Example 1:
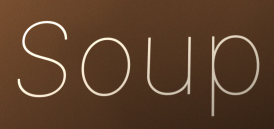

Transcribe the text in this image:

Soup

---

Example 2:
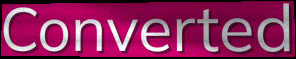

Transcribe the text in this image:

Converted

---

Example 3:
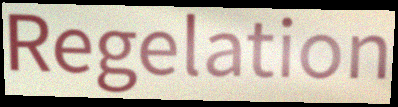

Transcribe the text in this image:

Regelation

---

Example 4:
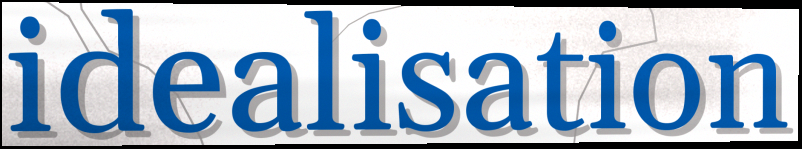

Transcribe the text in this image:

idealisation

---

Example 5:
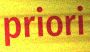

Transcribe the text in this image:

priori